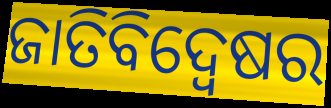
ଜାତିବିଦ୍ୱେଷର